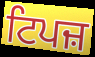
ਟਿਪਜ਼